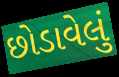
છોડાવેલું